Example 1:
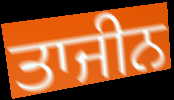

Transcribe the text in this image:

ਤਾਜੀਨ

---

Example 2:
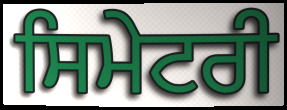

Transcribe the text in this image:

ਸਿਮੇਟਰੀ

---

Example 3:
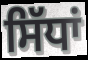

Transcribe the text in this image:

ਸਿੱਧਾਂ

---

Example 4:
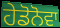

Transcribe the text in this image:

ਹੇਡੋਨੋਵਾ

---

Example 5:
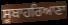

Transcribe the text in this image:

ਸੂਬਾਹਰਿਆਣਾ